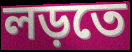
লড়তে